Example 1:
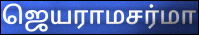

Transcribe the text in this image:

ஜெயராமசர்மா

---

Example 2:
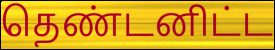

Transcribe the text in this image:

தெண்டனிட்ட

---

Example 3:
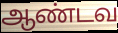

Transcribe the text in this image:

ஆண்டவ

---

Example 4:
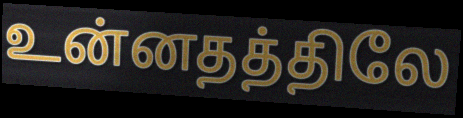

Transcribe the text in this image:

உன்னதத்திலே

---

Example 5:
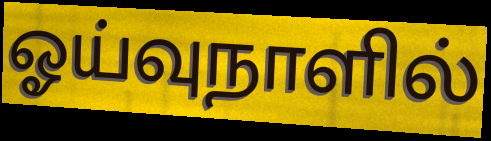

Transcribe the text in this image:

ஓய்வுநாளில்